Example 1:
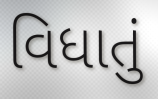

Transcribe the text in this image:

વિધાતું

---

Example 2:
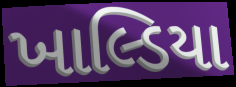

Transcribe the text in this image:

ખાલ્ડિયા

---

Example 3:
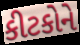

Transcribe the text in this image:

કીટકોને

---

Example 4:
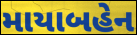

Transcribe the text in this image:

માયાબહેન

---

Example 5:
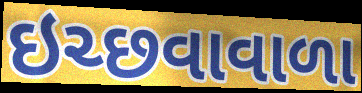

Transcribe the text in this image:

ઇચ્છવાવાળા